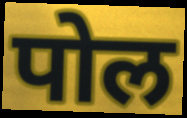
पोल